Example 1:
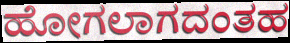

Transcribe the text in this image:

ಹೋಗಲಾಗದಂತಹ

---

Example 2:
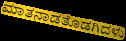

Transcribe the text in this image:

ಮಾತನಾಡತೊಡಗಿದಳು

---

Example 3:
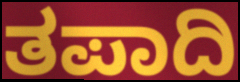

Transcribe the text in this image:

ತಪಾದಿ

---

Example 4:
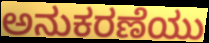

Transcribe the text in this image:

ಅನುಕರಣೆಯು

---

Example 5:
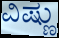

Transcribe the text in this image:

ವಿಷ್ಣು